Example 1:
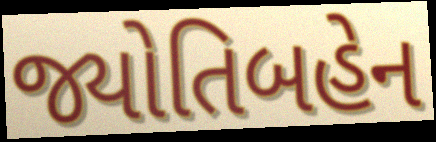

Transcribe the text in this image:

જ્યોતિબહેન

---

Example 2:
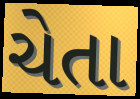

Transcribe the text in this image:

ચેતા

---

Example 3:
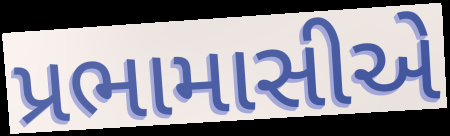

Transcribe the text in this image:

પ્રભામાસીએ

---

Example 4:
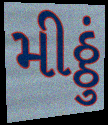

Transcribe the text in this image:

મીઠ્ઠું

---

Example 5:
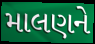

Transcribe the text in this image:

માલણને